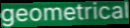
geometrical